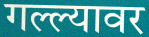
गल्ल्यावर